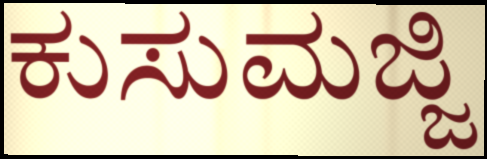
ಕುಸುಮಜ್ಜಿ